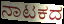
ನಾಟಕದ